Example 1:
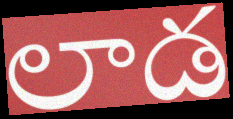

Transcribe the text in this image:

లాడ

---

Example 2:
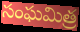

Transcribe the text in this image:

సంఘమిత్ర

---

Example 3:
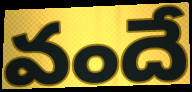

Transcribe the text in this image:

వందే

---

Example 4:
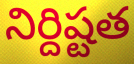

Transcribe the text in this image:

నిర్దిష్టత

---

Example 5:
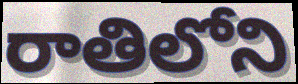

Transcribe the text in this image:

రాతిలోని